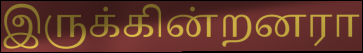
இருக்கின்றனரா